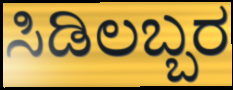
ಸಿಡಿಲಬ್ಬರ